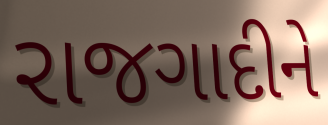
રાજગાદીને